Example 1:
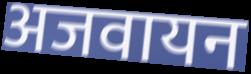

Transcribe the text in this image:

अजवायन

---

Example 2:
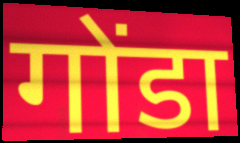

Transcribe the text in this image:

गोंडा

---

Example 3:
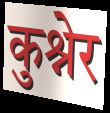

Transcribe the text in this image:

कुश्नेर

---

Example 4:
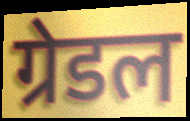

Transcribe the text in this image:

ग्रेडल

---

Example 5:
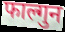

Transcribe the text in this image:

फाल्गुन